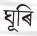
ঘূৰি